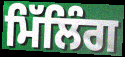
ਮਿੱਲਿੰਗ